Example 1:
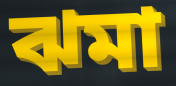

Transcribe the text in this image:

ঝমা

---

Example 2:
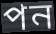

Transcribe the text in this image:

পন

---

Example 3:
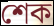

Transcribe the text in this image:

শেক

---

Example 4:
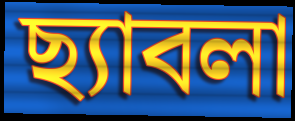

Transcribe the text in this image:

ছ্যাবলা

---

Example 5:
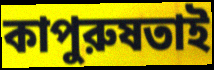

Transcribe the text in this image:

কাপুরুষতাই